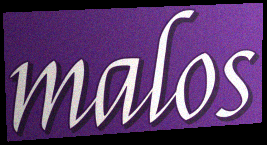
malos